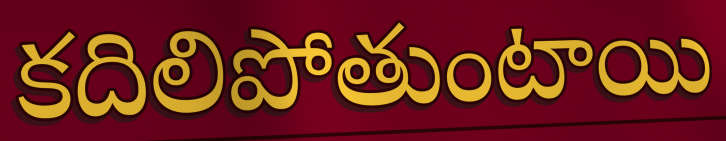
కదిలిపోతుంటాయి